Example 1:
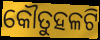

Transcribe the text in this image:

କୌତୁହଳଟି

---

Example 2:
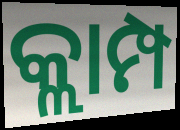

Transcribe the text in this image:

କ୍ଲାମ୍ପ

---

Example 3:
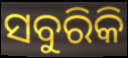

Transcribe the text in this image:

ସବୁରିକି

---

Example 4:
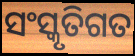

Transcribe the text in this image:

ସଂସ୍କୃତିଗତ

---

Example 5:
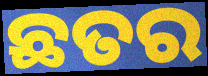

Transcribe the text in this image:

ଛତର